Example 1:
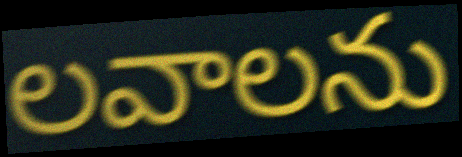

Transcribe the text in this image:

లవాలను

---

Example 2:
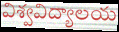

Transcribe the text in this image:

విశ్వవిద్యాలయ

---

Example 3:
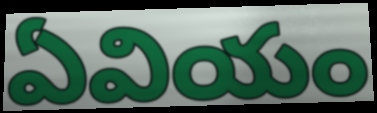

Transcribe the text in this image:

ఏవియం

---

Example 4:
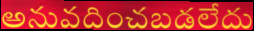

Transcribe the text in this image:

అనువదించబడలేదు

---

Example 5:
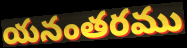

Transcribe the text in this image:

యనంతరము